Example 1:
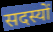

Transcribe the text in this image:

सदस्यों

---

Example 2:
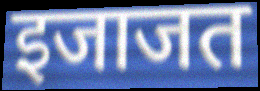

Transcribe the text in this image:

इजाजत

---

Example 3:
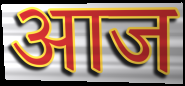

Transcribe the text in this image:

आज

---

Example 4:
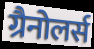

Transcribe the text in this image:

ग्रैनोलर्स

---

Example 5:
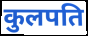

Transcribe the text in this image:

कुलपति